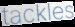
tackles